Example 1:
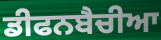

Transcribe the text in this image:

ਡੀਫਨਬੈਚੀਆ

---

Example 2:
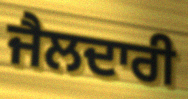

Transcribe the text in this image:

ਜੈਲਦਾਰੀ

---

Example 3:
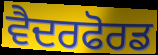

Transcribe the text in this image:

ਵੈਦਰਫੋਰਡ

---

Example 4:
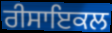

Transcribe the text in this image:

ਰੀਸਾਇਕਲ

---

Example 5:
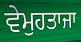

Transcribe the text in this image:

ਵੇਮੁਹਤਾਜਾ